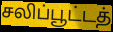
சலிப்பூட்டத்